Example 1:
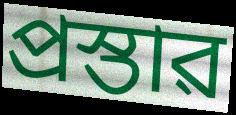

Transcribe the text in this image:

প্ৰস্তাৱ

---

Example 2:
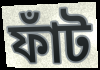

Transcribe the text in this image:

ফাঁট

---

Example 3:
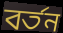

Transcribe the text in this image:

বৰ্তন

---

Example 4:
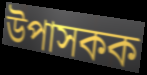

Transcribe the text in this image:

উপাসকক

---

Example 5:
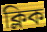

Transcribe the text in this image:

ক্লিক